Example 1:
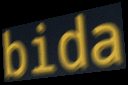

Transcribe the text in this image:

bida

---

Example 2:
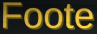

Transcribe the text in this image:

Foote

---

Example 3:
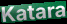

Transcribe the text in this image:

Katara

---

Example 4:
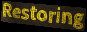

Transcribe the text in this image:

Restoring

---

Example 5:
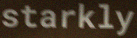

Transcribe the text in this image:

starkly